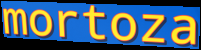
mortoza